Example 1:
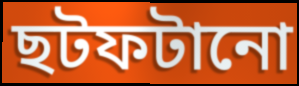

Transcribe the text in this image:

ছটফটানো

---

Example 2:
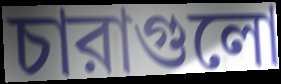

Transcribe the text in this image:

চারাগুলো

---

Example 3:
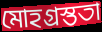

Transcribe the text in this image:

মোহগ্রস্ততা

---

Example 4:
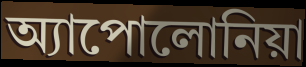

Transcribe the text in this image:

অ্যাপোলোনিয়া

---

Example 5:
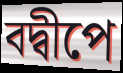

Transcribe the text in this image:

বদ্বীপে